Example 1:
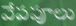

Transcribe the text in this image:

వేపపూలు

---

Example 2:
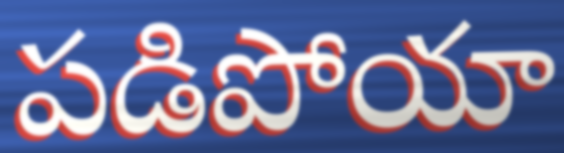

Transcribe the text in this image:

పడిపోయా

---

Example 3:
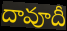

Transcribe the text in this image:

దావూదీ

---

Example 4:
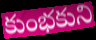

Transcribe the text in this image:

కుంభకుని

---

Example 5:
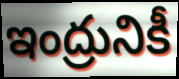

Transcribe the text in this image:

ఇంద్రునికీ